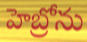
హెబ్రోను